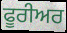
ਫੂਰੀਅਰ